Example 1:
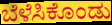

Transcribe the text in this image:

ಬೆಳೆಸಿಕೊಂಡು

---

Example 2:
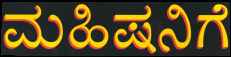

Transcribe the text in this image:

ಮಹಿಷನಿಗೆ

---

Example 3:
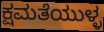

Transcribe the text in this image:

ಕ್ಷಮತೆಯುಳ್ಳ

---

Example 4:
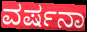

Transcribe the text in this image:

ವರ್ಷನಾ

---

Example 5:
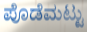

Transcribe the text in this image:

ಪೊಡೆಮಟ್ಟು